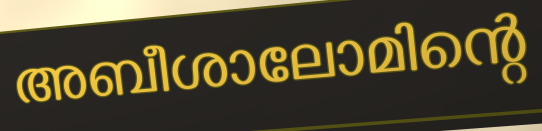
അബീശാലോമിന്റെ